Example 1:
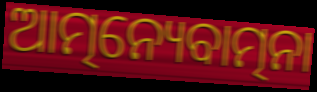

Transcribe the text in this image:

ଆତ୍ମନ୍ୟେବାତ୍ମନା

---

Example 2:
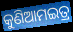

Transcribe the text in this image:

କୁଣିଆମଇତ୍ର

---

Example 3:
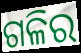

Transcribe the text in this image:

ଗଳିର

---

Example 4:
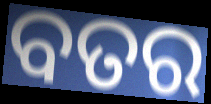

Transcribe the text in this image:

ବତର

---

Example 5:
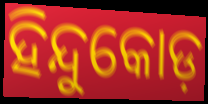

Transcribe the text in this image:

ହିନ୍ଦୁକୋଡ଼